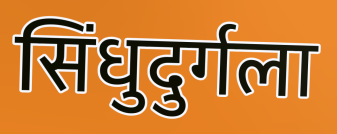
सिंधुदुर्गला